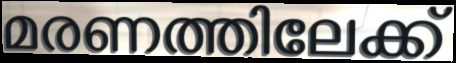
മരണത്തിലേക്ക്